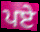
ਪਏ